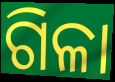
ଗିଳା